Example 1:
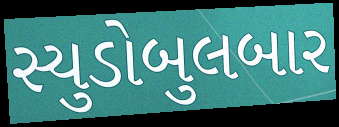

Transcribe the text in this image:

સ્યુડોબુલબાર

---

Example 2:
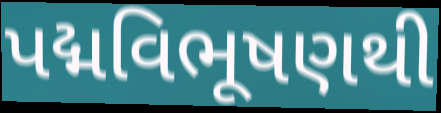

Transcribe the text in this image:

પદ્મવિભૂષણથી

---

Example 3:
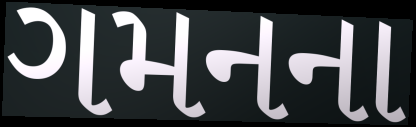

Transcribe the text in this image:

ગમનના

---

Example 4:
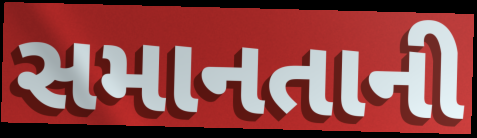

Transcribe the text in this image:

સમાનતાની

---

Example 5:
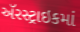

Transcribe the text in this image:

ઍરસ્ટ્રાઇકમાં